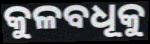
କୁଳବଧୂକୁ